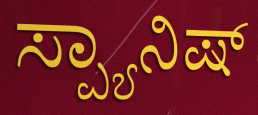
ಸ್ಪ್ಯಾನಿಷ್